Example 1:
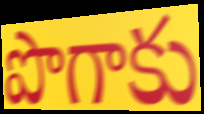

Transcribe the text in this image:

పొగాకు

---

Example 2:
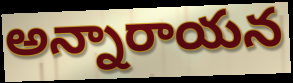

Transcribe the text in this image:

అన్నారాయన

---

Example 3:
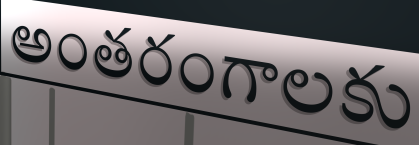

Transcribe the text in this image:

అంతరంగాలకు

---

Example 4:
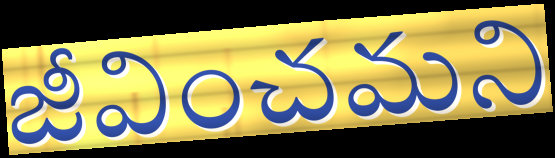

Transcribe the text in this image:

జీవించమని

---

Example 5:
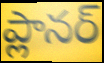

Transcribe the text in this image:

ప్లానర్